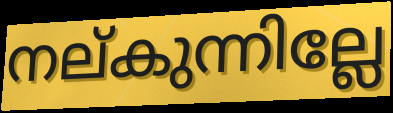
നല്കുന്നില്ലേ